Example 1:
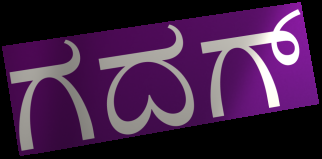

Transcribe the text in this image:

ಗದಗ್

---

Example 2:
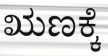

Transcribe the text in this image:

ಋಣಕ್ಕೆ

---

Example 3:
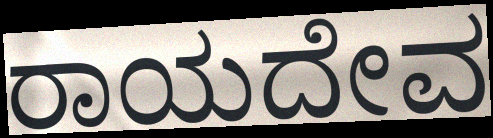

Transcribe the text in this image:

ರಾಯದೇವ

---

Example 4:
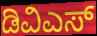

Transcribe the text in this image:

ಡಿವಿಎಸ್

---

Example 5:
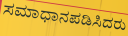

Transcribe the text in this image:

ಸಮಾಧಾನಪಡಿಸಿದರು